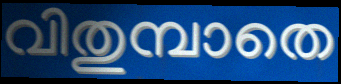
വിതുമ്പാതെ